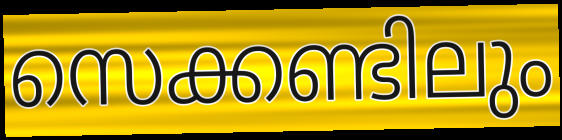
സെക്കണ്ടിലും